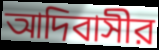
আদিবাসীর